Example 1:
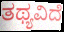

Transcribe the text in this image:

ತಥ್ಯವಿದೆ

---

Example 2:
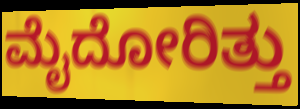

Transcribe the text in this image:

ಮೈದೋರಿತ್ತು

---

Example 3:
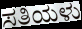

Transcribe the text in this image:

ಸತಿಯಳು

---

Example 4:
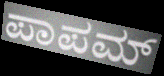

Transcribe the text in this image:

ಪಾಪಮ್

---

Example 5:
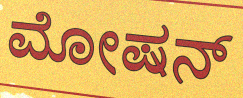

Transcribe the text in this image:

ಮೋಷನ್